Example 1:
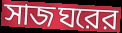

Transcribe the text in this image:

সাজঘরের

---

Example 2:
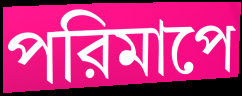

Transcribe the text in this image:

পরিমাপে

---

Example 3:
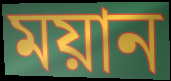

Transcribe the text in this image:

ময়ান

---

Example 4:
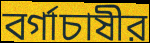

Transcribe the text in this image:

বর্গাচাষীর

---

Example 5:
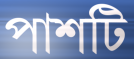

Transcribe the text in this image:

পাশটি